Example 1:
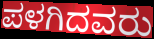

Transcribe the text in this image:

ಪಳಗಿದವರು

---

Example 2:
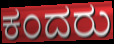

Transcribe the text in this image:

ಕಂದರು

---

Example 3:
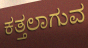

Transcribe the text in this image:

ಕತ್ತಲಾಗುವ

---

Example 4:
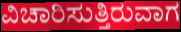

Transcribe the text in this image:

ವಿಚಾರಿಸುತ್ತಿರುವಾಗ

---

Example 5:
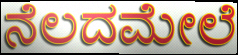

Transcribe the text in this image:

ನೆಲದಮೇಲೆ